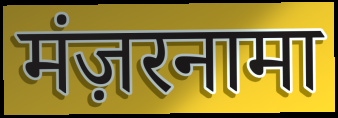
मंज़रनामा